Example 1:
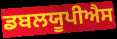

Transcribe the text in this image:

ਡਬਲਯੂਪੀਐਸ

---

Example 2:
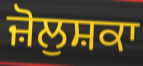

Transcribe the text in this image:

ਜ਼ੋਲੁਸ਼ਕਾ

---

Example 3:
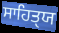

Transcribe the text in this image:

ਸਾਹਿਤੑਯ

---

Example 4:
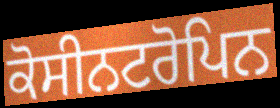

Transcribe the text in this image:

ਕੋਸੀਨਟਰੋਪਿਨ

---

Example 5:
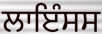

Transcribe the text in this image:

ਲਾਇੰਸਸ